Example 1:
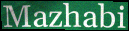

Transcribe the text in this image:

Mazhabi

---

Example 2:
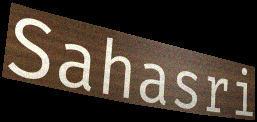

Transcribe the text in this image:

Sahasri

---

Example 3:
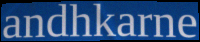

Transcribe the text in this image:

andhkarne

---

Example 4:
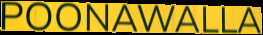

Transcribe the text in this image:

POONAWALLA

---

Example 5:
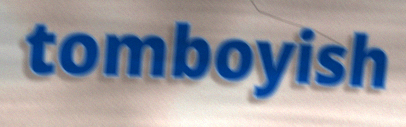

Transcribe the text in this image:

tomboyish